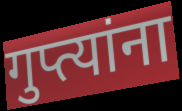
गुप्त्यांना